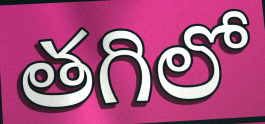
తగిలో